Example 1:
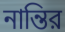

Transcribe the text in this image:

নান্তির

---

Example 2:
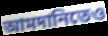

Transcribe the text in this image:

আমদানিতেও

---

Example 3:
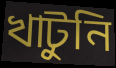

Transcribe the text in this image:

খাটুনি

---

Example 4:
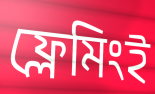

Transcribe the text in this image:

ফ্লেমিংই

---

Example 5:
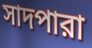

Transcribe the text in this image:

সাদপারা